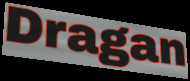
Dragan